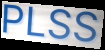
PLSS